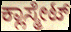
ಕ್ಲಾಸ್ಮೇಟ್